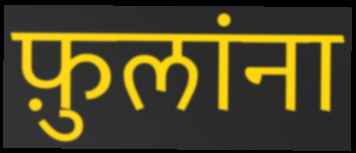
फ़ुलांना